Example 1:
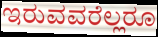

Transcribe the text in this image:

ಇರುವವರೆಲ್ಲರೂ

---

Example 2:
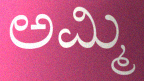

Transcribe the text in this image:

ಅಮ್ಮಿ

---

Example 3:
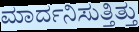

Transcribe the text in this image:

ಮಾರ್ದನಿಸುತ್ತಿತ್ತು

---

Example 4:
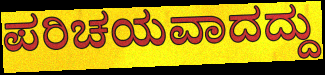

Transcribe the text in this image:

ಪರಿಚಯವಾದದ್ದು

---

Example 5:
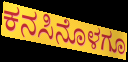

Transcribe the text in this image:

ಕನಸಿನೊಳಗೂ